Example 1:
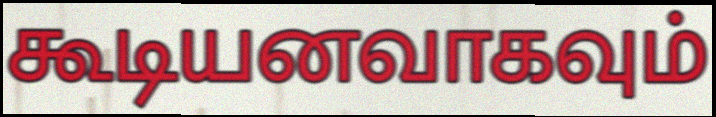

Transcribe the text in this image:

கூடியனவாகவும்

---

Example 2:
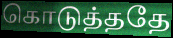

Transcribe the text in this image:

கொடுத்ததே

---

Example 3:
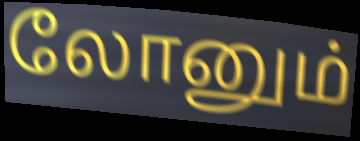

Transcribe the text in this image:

லோனும்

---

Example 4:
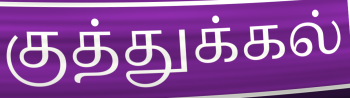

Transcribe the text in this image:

குத்துக்கல்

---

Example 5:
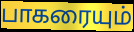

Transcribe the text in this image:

பாகரையும்